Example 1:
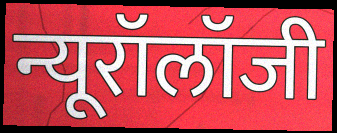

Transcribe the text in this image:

न्यूरॉलॉजी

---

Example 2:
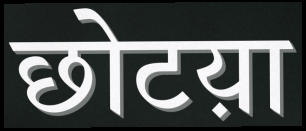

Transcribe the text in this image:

छोटय़ा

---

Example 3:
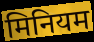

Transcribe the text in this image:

मिनियम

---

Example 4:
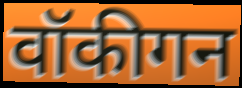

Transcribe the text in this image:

वॉकीगन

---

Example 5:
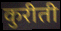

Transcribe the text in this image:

कुरीती